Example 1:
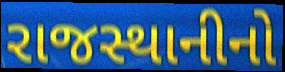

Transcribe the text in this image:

રાજસ્થાનીનો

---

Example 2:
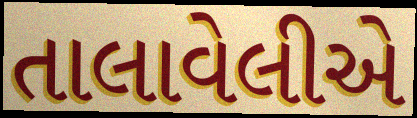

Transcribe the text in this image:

તાલાવેલીએ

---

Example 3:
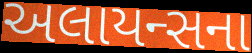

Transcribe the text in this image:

અલાયન્સના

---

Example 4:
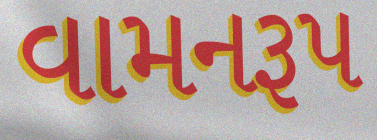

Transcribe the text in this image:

વામનરૂપ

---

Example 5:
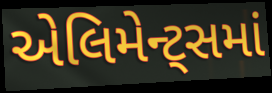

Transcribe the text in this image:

એલિમેન્ટ્સમાં